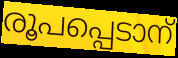
രൂപപ്പെടാന്